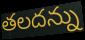
తలదన్ను